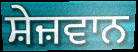
ਸ਼ੇਜ਼ਵਾਨ